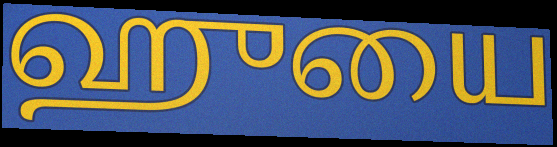
ஹுயை